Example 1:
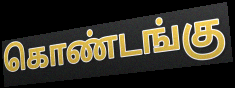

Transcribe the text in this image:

கொண்டங்கு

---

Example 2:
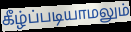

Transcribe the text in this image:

கீழ்ப்படியாமலும்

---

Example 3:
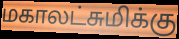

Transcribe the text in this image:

மகாலட்சுமிக்கு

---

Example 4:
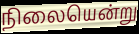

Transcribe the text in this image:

நிலையென்று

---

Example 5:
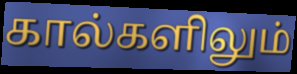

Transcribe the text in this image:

கால்களிலும்